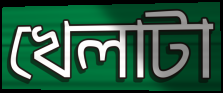
খেলাটা